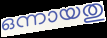
ഒന്നായതു